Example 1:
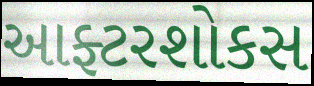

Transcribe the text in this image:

આફ્ટરશોકસ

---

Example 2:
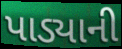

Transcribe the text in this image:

પાડ્યાની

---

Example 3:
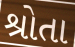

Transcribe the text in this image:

શ્રોતા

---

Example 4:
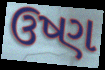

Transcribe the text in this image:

ઉષ્ણ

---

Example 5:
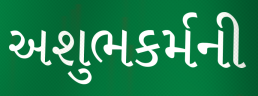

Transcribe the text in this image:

અશુભકર્મની